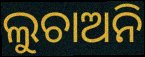
ଲୁଚାଅନି